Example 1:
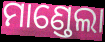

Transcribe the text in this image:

ମାଣ୍ଡେଲା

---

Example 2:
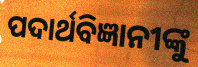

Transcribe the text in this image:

ପଦାର୍ଥବିଜ୍ଞାନୀଙ୍କୁ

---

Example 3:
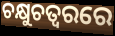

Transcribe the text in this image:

ଚକ୍ଷୁଚତ୍ୱରରେ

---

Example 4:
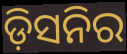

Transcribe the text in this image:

ଡ଼ିସନିର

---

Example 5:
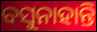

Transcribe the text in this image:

ବସୁନାହାନ୍ତି